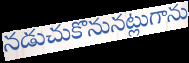
నడుచుకొనునట్లుగాను